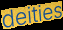
deities